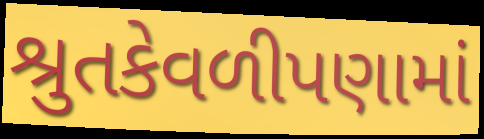
શ્રુતકેવળીપણામાં